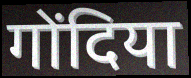
गोंदिया